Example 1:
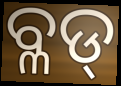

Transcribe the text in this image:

ବ୍ଳଡ୍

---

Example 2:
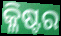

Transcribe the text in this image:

କ୍ଳିଷ୍ଟର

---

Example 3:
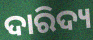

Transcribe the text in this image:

ଦାରିଦ୍ୟ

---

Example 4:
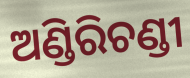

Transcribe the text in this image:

ଅଣ୍ଡିରିଚଣ୍ଡୀ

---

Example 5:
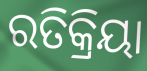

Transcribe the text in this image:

ରତିକ୍ରିୟା